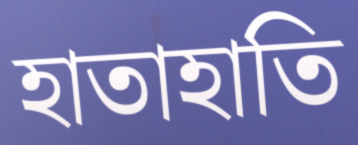
হাতাহাতি